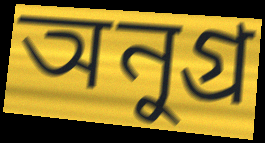
অনুগ্র